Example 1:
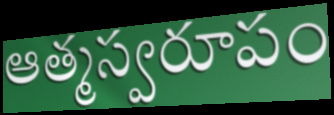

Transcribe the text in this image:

ఆత్మస్వరూపం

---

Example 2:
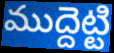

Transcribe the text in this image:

ముద్దెట్టి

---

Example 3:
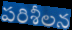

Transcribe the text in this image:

పరిశీలన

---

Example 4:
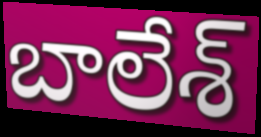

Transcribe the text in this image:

బాలేశ్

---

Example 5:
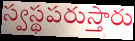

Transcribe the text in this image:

స్వస్థపరుస్తారు